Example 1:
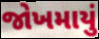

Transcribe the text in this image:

જોખમાયું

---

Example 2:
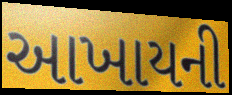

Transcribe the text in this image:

આખાયની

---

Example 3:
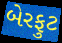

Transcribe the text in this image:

બેરફુટ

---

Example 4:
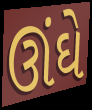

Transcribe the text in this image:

ઊંઘે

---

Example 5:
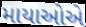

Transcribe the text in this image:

માયાઓએ